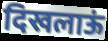
दिखलाऊं